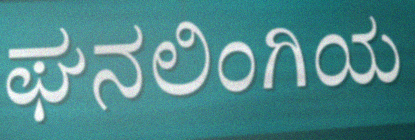
ಘನಲಿಂಗಿಯ